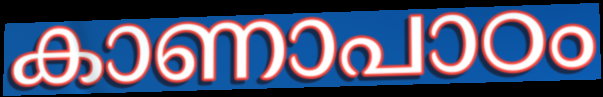
കാണാപാഠം